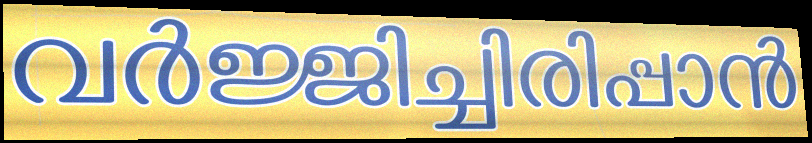
വർജ്ജിച്ചിരിപ്പാൻ